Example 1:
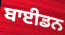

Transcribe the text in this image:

ਬਾਈਡਨ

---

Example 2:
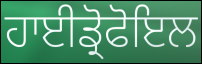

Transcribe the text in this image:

ਹਾਈਡ੍ਰੋਫੋਇਲ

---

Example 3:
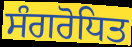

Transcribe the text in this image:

ਸੰਗਰੋਧਿਤ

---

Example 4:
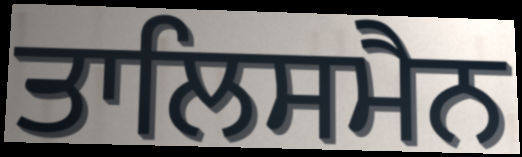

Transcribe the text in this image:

ਤਾਲਿਸਮੈਨ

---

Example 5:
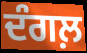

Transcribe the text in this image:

ਦੰਗਲ਼